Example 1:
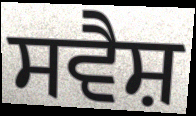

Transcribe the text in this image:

ਸਵੈਸ਼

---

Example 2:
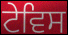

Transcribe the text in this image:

ਟੇਵਿਸ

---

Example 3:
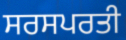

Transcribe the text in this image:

ਸਰਸਪਰਤੀ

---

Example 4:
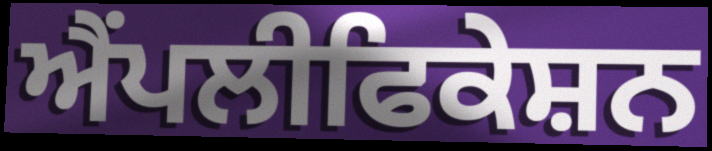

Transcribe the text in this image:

ਐਂਪਲੀਫਿਕੇਸ਼ਨ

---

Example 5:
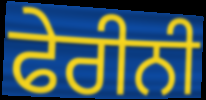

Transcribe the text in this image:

ਫੇਰੀਨੀ